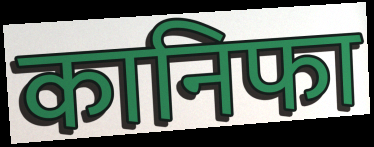
कानिफा